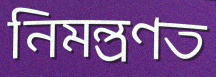
নিমন্ত্ৰণত